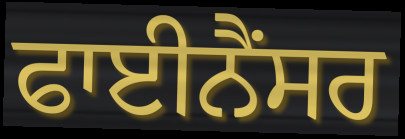
ਫਾਈਨੈਂਸਰ